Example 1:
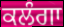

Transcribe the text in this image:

ਕਲੰਗਾ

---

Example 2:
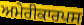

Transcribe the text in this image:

ਅਮੇਰੀਕਾਰਪਸ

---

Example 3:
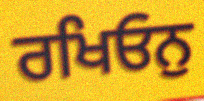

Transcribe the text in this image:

ਰਖਿਓਨੁ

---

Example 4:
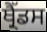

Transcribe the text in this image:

ਥ੍ਰੈੱਡਸ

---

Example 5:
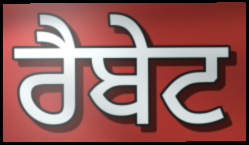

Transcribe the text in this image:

ਰੈਬੇਟ